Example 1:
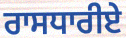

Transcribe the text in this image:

ਰਾਸਧਾਰੀਏ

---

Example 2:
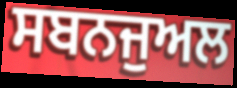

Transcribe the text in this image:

ਸਬਨਜੁਅਲ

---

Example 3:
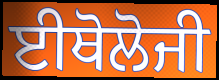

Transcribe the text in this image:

ਈਥੋਲੋਜੀ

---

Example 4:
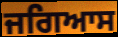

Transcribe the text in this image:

ਜਗਿਆਸ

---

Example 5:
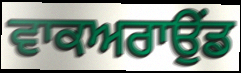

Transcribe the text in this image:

ਵਾਕਅਰਾਉਂਡ